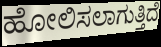
ಹೋಲಿಸಲಾಗುತ್ತಿದೆ